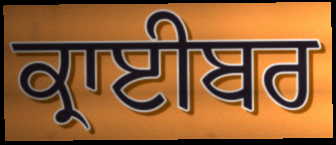
ਕ੍ਰਾਈਬਰ